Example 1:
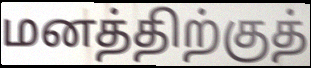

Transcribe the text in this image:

மனத்திற்குத்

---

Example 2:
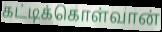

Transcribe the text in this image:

கட்டிக்கொள்வான்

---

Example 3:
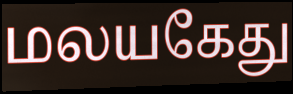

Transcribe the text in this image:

மலயகேது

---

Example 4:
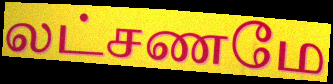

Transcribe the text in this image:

லட்சணமே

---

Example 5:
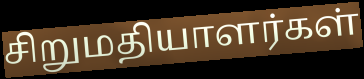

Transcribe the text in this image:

சிறுமதியாளர்கள்